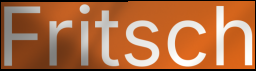
Fritsch